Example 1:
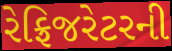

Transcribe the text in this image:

રેફ્રિજરેટરની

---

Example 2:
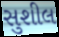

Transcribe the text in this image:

સુશીલ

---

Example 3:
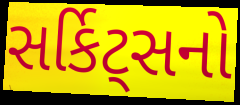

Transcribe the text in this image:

સર્કિટ્સનો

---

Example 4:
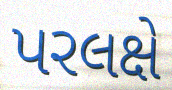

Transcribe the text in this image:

પરલક્ષે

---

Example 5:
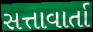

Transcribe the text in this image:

સત્તાવાર્તા